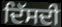
ਦਿੱਸਦੀ